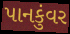
પાનકુંવર